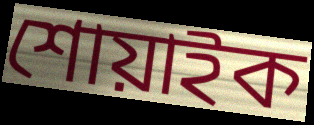
শোয়াইক